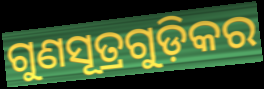
ଗୁଣସୂତ୍ରଗୁଡ଼ିକର